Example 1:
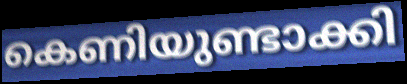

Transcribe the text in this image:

കെണിയുണ്ടാക്കി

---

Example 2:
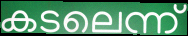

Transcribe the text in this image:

കടലെന്ന്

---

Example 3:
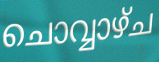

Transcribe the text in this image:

ചൊവ്വാഴ്ച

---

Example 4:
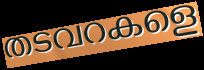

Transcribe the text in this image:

തടവറകളെ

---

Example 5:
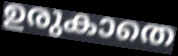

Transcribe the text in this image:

ഉരുകാതെ